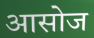
आसोज